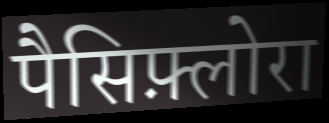
पैसिफ़्लोरा